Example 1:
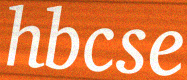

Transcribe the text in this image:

hbcse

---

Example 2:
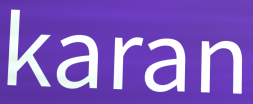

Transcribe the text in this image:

karan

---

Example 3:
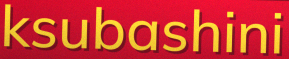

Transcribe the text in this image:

ksubashini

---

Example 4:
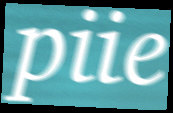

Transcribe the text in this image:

piie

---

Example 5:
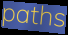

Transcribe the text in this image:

paths